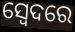
ସ୍ଵେଦରେ